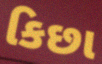
કિછા